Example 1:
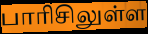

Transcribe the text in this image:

பாரிசிலுள்ள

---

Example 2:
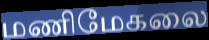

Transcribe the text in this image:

மணிமேகலை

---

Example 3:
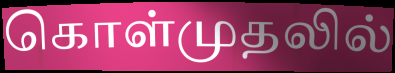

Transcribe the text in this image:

கொள்முதலில்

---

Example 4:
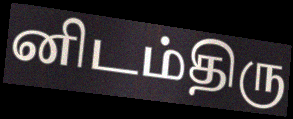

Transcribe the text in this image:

னிடம்திரு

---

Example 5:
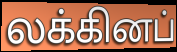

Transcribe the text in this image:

லக்கினப்